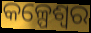
କଳ୍ପେଶ୍ୱର